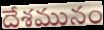
దేశమునం